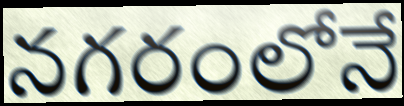
నగరంలోనే